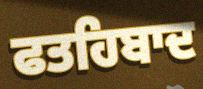
ਫਤਹਿਬਾਦ